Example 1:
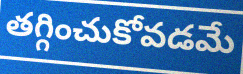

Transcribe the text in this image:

తగ్గించుకోవడమే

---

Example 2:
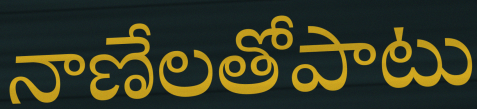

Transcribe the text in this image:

నాణేలతోపాటు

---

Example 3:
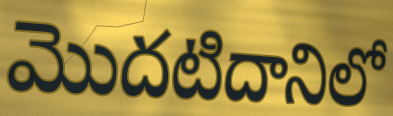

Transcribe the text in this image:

మొదటిదానిలో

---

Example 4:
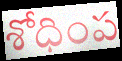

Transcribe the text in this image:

శోధింప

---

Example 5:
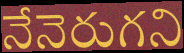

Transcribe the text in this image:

నేనెరుగని